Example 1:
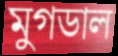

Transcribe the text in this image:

মুগডাল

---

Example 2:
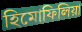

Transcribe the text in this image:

হিমোফিলিয়া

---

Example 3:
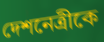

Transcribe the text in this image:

দেশনেত্রীকে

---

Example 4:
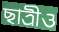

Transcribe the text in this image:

ছাত্রীও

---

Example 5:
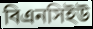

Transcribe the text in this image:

বিএনসিইউ